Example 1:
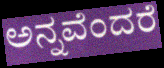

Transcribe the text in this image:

ಅನ್ನವೆಂದರೆ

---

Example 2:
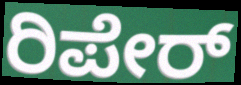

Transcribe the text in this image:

ರಿಪೇರ್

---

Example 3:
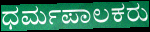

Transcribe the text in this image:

ಧರ್ಮಪಾಲಕರು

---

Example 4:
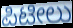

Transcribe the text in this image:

ಪಿಟೀಲು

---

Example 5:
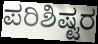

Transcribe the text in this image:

ಪರಿಶಿಷ್ಟರ